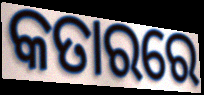
କତାରରେ